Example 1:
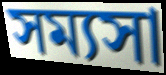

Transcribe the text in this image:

সম্যসা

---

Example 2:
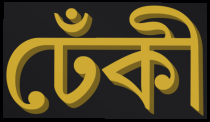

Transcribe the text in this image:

ঢেঁকী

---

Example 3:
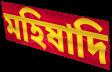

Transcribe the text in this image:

মহিষাদি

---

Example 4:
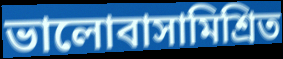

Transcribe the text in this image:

ভালোবাসামিশ্রিত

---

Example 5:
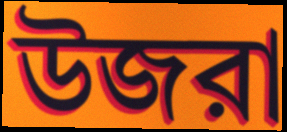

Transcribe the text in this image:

উজরা